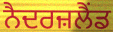
ਨੈਦਰਜ਼ਲੈਂਡ